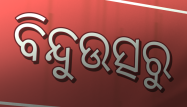
ବିନ୍ଦୁଉତ୍ସରୁ